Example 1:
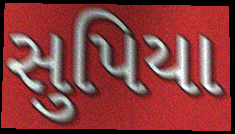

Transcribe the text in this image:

સુપિયા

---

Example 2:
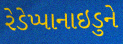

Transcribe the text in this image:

રેડેપ્પાનાઇડુને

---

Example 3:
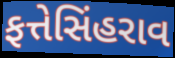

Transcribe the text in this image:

ફત્તેસિંહરાવ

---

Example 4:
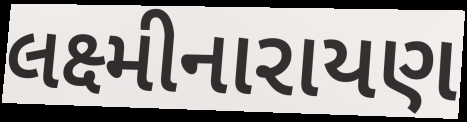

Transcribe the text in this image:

લક્ષ્મીનારાયણ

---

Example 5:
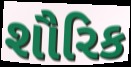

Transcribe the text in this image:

શૌરિક